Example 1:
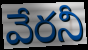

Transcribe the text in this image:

వేరనీ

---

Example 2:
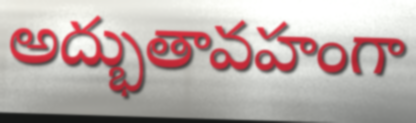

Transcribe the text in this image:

అద్భుతావహంగా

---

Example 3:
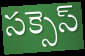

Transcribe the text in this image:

సక్సెస్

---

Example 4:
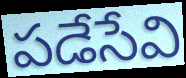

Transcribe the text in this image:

పడేసేవి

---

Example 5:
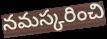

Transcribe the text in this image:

నమస్కరించి